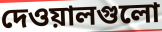
দেওয়ালগুলো